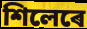
শিলেৰে